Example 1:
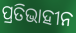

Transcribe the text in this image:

ପ୍ରତିଭାହୀନ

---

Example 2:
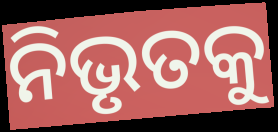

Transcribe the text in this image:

ନିଭୃତକୁ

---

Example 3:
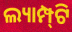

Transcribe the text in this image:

ଲ୍ୟାମ୍ପ୍‍ଟି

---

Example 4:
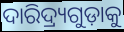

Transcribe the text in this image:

ଦାରିଦ୍ର୍ୟଗୁଡ଼ାକୁ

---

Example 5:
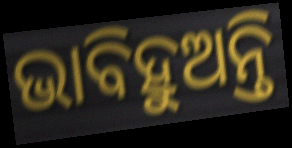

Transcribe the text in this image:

ଭାବିହୁଅନ୍ତି